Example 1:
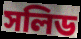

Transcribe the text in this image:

সলিড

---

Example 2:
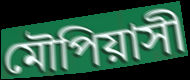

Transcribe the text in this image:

মৌপিয়াসী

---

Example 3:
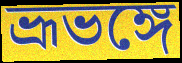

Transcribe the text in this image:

ভ্রূভঙ্গে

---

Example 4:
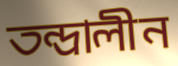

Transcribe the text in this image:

তন্দ্রালীন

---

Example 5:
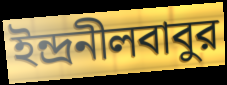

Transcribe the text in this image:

ইন্দ্রনীলবাবুর